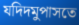
যদিদমুপাসতে